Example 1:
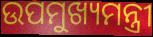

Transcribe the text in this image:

ଉପମୁଖ୍ୟମନ୍ତ୍ରୀ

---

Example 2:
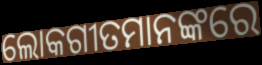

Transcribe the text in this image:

ଲୋକଗୀତମାନଙ୍କରେ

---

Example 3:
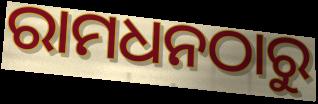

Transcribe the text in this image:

ରାମଧନଠାରୁ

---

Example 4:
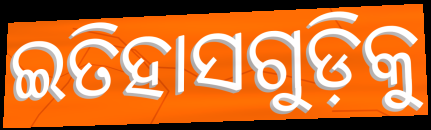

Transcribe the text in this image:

ଇତିହାସଗୁଡ଼ିକୁ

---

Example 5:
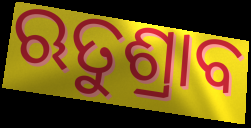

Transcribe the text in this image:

ଋତୁଶ୍ରାବ